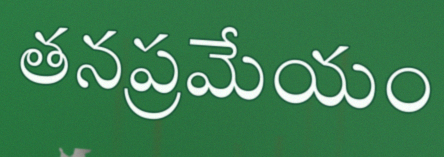
తనప్రమేయం